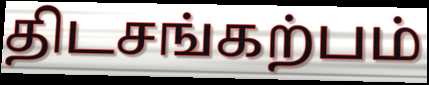
திடசங்கற்பம்